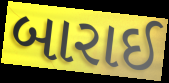
બારાઈ